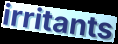
irritants